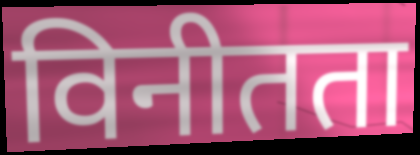
विनीतता